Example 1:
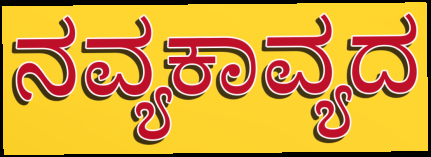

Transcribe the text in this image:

ನವ್ಯಕಾವ್ಯದ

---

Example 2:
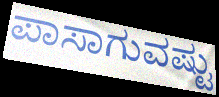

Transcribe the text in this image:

ಪಾಸಾಗುವಷ್ಟು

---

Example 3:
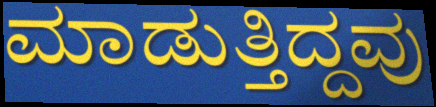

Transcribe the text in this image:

ಮಾಡುತ್ತಿದ್ದವು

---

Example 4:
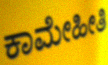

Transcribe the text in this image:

ಕಾಮೇಹೀತಿ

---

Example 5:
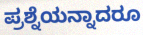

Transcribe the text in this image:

ಪ್ರಶ್ನೆಯನ್ನಾದರೂ